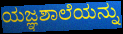
ಯಜ್ಞಶಾಲೆಯನ್ನು